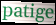
patige